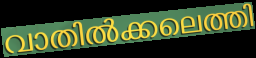
വാതിൽക്കലെത്തി